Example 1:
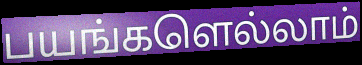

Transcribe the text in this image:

பயங்களெல்லாம்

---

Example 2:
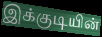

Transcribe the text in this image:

இக்குடியின்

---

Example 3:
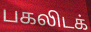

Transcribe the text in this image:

பகலிடக்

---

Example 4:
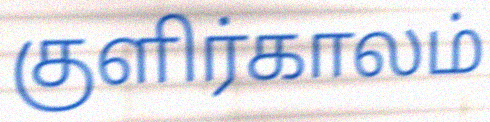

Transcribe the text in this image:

குளிர்காலம்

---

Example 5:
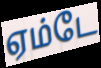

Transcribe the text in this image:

ஏம்டே